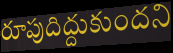
రూపుదిద్దుకుందని